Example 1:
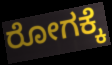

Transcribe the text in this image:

ರೋಗಕ್ಕೆ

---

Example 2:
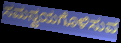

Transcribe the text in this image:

ಸಮನ್ವಯಗೊಳಿಸುವ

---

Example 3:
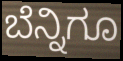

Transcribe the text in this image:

ಬೆನ್ನಿಗೂ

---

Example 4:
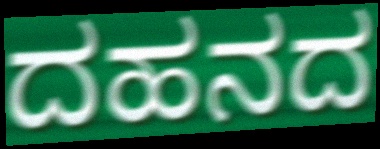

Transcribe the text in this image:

ದಹನದ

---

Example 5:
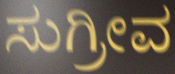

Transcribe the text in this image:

ಸುಗ್ರೀವ